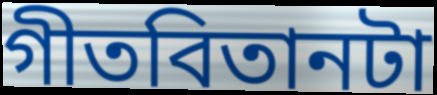
গীতবিতানটা